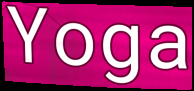
Yoga